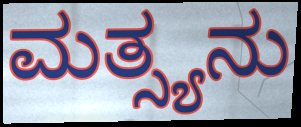
ಮತ್ಸ್ಯನು